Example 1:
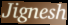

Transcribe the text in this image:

Jignesh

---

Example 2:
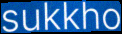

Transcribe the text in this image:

sukkho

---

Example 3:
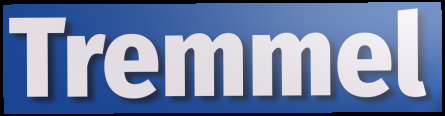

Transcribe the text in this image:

Tremmel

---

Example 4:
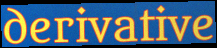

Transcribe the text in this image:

derivative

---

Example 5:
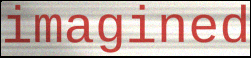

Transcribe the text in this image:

imagined